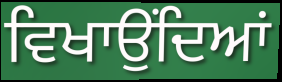
ਵਿਖਾਉਂਦਿਆਂ